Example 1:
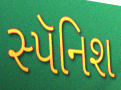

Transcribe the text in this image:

સ્પૅનિશ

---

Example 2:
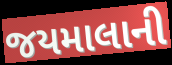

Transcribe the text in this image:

જયમાલાની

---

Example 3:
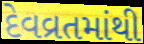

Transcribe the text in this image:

દેવવ્રતમાંથી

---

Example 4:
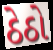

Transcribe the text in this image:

ઠેઠો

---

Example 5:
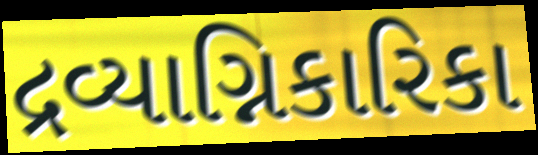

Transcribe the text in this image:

દ્રવ્યાગ્નિકારિકા